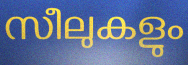
സീലുകളും